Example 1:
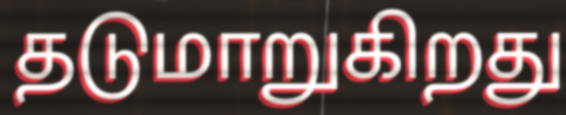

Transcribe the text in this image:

தடுமாறுகிறது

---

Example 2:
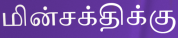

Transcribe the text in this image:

மின்சக்திக்கு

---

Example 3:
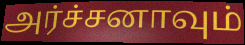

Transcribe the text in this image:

அர்ச்சனாவும்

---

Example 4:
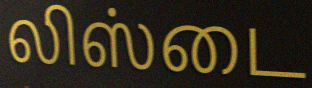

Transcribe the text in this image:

லிஸ்டை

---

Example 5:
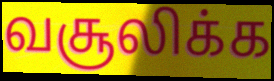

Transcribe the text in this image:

வசூலிக்க